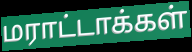
மராட்டாக்கள்